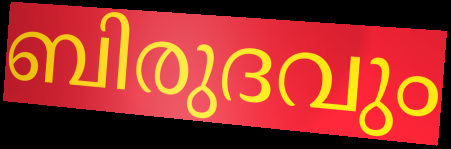
ബിരുദവും